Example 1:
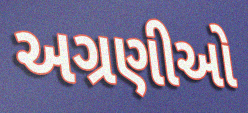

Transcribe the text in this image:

અગ્રણીઓ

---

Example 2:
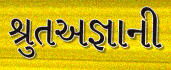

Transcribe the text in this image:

શ્રુતઅજ્ઞાની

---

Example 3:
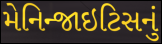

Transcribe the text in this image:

મેનિન્જાઇટિસનું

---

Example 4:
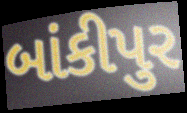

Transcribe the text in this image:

બાંકીપુર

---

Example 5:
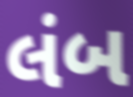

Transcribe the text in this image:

લંબ